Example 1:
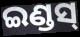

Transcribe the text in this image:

ଇଣ୍ଡସ୍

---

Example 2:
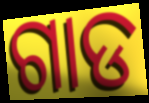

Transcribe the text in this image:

ଗାଡ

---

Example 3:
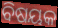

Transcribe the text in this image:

ବିଷୟକ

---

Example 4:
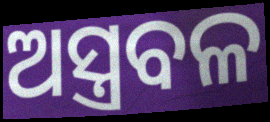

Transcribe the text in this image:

ଅସ୍ତ୍ରବଳ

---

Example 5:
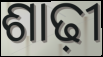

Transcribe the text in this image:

ଶାଢ଼ୀ